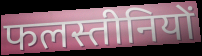
फलस्तीनियों